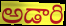
అడారి